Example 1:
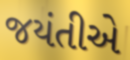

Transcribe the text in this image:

જયંતીએ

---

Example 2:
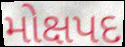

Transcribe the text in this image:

મોક્ષપદ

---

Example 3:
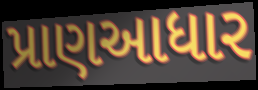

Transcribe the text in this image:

પ્રાણઆધાર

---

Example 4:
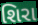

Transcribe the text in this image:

શિરા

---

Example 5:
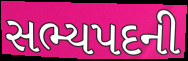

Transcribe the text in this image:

સભ્યપદની